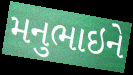
મનુભાઇને